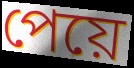
পেয়ে